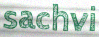
sachvi